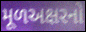
મૂળઅક્ષરનો